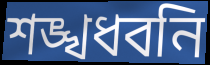
শঙ্খধবনি